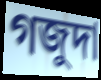
গজুদা